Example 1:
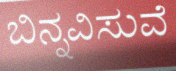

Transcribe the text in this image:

ಬಿನ್ನವಿಸುವೆ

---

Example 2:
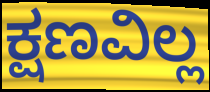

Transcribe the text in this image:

ಕ್ಷಣವಿಲ್ಲ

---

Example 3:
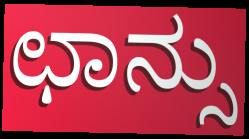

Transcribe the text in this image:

ಛಾನ್ಸು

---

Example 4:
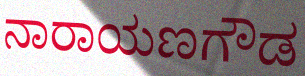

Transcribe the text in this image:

ನಾರಾಯಣಗೌಡ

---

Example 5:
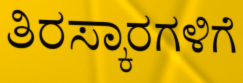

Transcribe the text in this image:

ತಿರಸ್ಕಾರಗಳಿಗೆ